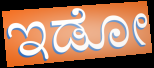
ಇಡೋ